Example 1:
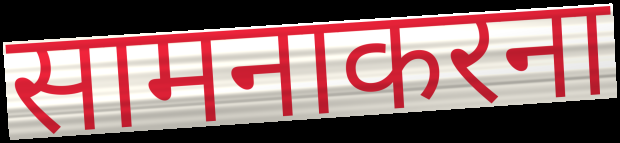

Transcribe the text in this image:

सामनाकरना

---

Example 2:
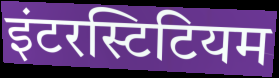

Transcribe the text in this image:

इंटरस्टिटियम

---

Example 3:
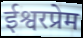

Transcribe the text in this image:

ईश्वरप्रेम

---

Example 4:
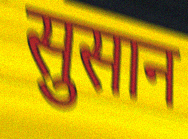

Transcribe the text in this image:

सुसान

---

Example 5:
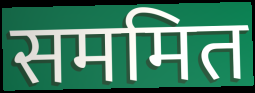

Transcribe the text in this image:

सममित